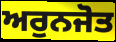
ਅਰੁਨਜੋਤ